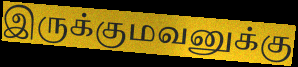
இருக்குமவனுக்கு